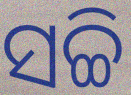
ସଚ୍ଚି